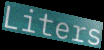
Liters